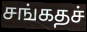
சங்கதச்